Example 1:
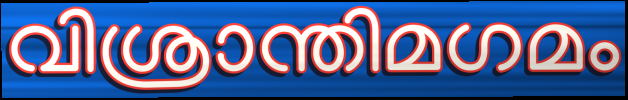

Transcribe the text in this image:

വിശ്രാന്തിമഗമം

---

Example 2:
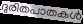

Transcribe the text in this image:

ദുരിതപാതകൾ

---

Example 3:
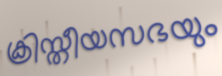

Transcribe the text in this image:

ക്രിസ്തീയസഭയും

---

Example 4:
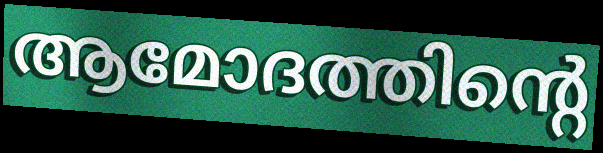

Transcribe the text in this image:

ആമോദത്തിന്റെ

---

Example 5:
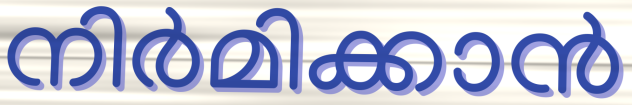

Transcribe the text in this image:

നിർമിക്കാൻ